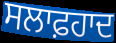
ਸਲਾਫ਼ਹਾਦ